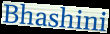
Bhashini